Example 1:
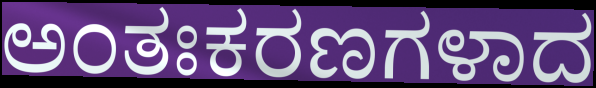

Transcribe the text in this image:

ಅಂತಃಕರಣಗಳಾದ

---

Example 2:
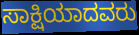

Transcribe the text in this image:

ಸಾಕ್ಷಿಯಾದವರು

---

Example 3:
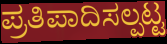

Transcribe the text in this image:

ಪ್ರತಿಪಾದಿಸಲ್ಪಟ್ಟ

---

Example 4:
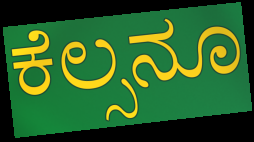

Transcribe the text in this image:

ಕೆಲ್ಸನೂ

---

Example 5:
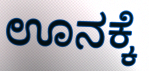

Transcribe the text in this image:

ಊನಕ್ಕೆ